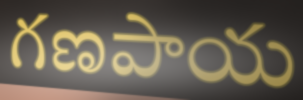
గణపాయ